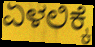
ಏಳಲಿಕ್ಕೆ